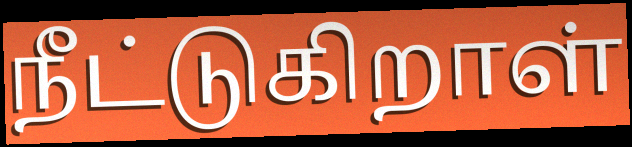
நீட்டுகிறாள்